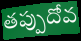
తప్పుదోవ